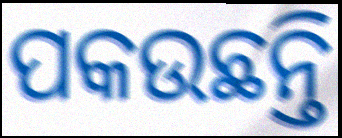
ପକଉଛନ୍ତି